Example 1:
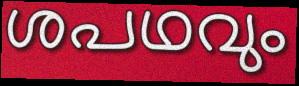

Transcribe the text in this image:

ശപഥവും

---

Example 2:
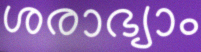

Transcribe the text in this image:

ശരാഭ്യാം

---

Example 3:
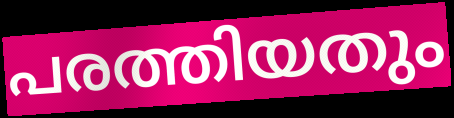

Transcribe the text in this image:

പരത്തിയതും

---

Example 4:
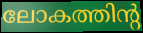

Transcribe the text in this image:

ലോകത്തിന്റ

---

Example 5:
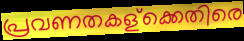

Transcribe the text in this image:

പ്രവണതകള്ക്കെതിരെ